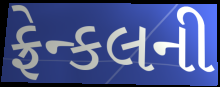
ફ્રેન્કલની